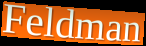
Feldman